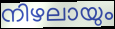
നിഴലായും